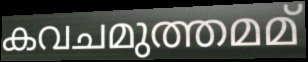
കവചമുത്തമമ്